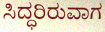
ಸಿದ್ಧರಿರುವಾಗ